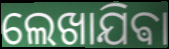
ଲେଖାଯିଵା